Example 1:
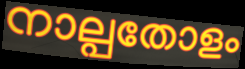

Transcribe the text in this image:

നാല്പതോളം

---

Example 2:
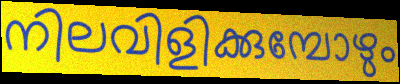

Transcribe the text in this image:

നിലവിളിക്കുമ്പോഴും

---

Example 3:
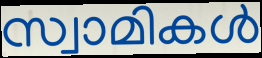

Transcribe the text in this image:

സ്വാമികൾ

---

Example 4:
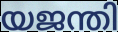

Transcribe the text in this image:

യജന്തി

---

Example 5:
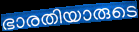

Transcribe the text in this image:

ഭാരതിയാരുടെ